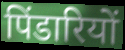
पिंडारियों